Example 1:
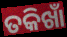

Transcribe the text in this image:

ତକିଖାଁ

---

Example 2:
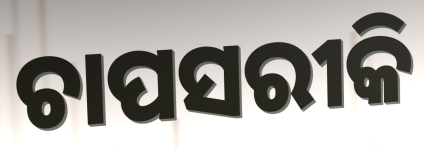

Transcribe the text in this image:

ଚାପସରୀକି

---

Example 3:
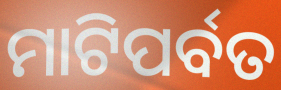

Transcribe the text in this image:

ମାଟିପର୍ବତ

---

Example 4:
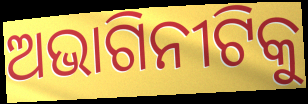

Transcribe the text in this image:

ଅଭାଗିନୀଟିକୁ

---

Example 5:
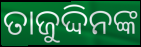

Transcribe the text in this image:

ତାଜୁଦ୍ଦିନଙ୍କ